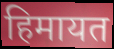
हिमायत